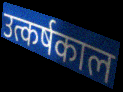
उत्कर्षकाल